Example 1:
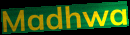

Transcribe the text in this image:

Madhwa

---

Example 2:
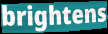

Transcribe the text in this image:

brightens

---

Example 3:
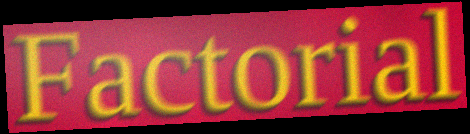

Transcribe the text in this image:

Factorial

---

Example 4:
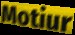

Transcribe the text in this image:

Motiur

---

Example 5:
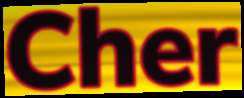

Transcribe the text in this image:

Cher